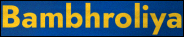
Bambhroliya